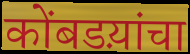
कोंबडय़ांचा